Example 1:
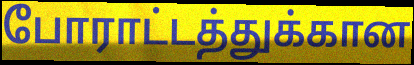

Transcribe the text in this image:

போராட்டத்துக்கான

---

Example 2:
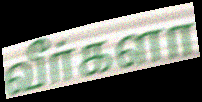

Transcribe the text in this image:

வீர்களா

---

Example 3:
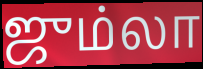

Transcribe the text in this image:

ஜும்லா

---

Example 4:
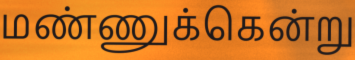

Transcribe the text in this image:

மண்ணுக்கென்று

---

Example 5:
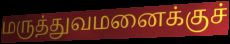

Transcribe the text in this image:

மருத்துவமனைக்குச்